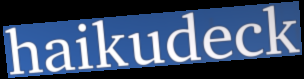
haikudeck